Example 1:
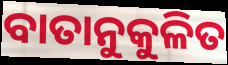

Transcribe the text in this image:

ବାତାନୁକୁଳିତ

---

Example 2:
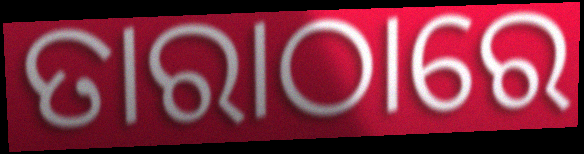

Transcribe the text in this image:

ତାରାଠାରେ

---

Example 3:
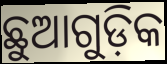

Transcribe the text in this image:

ଛୁଆଗୁଡ଼ିକ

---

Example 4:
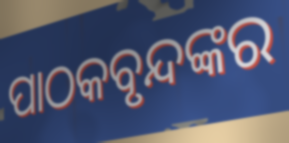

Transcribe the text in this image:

ପାଠକବୃନ୍ଦଙ୍କର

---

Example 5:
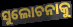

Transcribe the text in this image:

ସୁଲୋଚନାକୁ